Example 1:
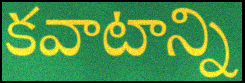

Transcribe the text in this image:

కవాటాన్ని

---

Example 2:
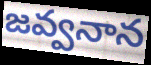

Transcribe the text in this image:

జవ్వనాన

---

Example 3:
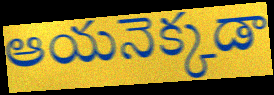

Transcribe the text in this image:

ఆయనెక్కడా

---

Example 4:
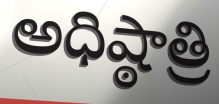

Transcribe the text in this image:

అధిష్ఠాత్రి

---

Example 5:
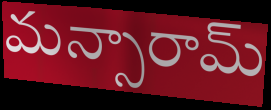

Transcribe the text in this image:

మన్సారామ్